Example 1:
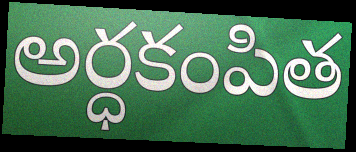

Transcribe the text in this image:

అర్ధకంపిత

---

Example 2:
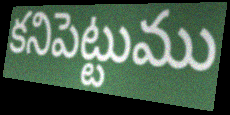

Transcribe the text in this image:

కనిపెట్టుము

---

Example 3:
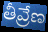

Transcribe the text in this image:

తీవ్రేణ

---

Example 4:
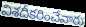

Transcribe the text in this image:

విశదీకరించేవారు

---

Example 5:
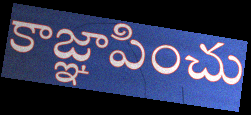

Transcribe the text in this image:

కాజ్ఞాపించు